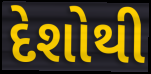
દેશોથી